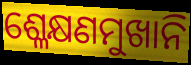
ଶ୍ଳେକ୍ଷଣମୁଖାନି